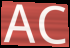
AC